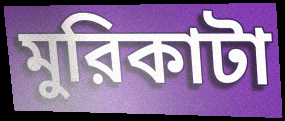
মুরিকাটা